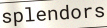
splendors